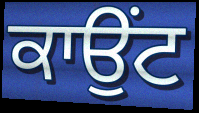
ਕਾਉਂਟ